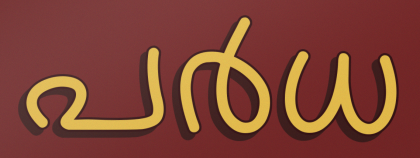
പർധ